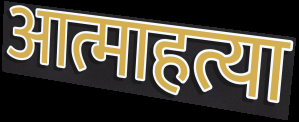
आत्माहत्या